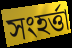
সংহর্ত্তা